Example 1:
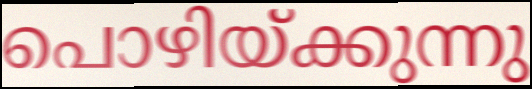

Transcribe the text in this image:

പൊഴിയ്ക്കുന്നു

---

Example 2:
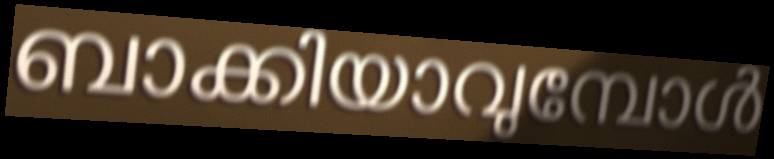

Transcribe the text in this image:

ബാക്കിയാവുമ്പോൾ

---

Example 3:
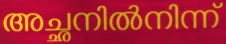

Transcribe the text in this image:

അച്ഛനിൽനിന്ന്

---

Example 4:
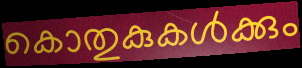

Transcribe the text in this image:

കൊതുകുകൾക്കും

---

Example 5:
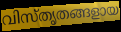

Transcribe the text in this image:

വിസ്തൃതങ്ങളായ